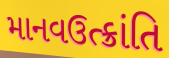
માનવઉત્ક્રાંતિ